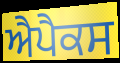
ਐਪੈਕਸ